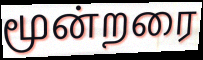
மூன்றரை